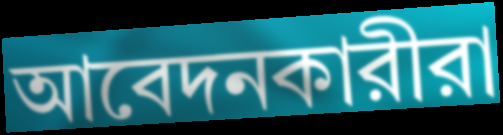
আবেদনকারীরা